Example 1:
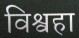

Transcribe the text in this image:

विश्वहा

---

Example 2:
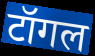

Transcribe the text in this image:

टॉगल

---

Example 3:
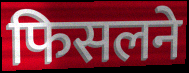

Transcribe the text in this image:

फिसलने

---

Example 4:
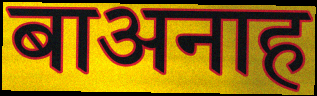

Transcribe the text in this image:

बाअनाह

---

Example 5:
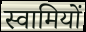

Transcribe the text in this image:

स्वामियों